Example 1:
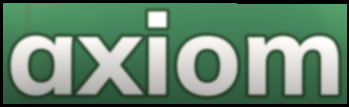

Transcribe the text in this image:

axiom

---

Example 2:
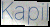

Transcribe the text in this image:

Kapil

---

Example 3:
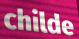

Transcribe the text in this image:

childe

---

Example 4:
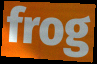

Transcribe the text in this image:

frog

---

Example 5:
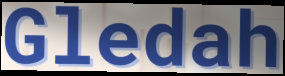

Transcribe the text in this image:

Gledah